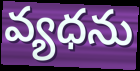
వ్యధను